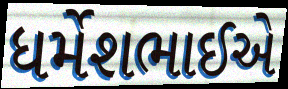
ધર્મેશભાઈએ